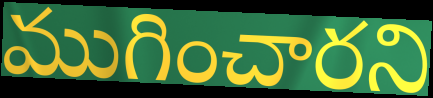
ముగించారని